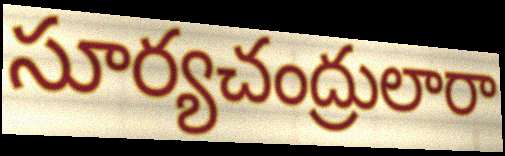
సూర్యచంద్రులారా